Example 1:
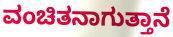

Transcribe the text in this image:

ವಂಚಿತನಾಗುತ್ತಾನೆ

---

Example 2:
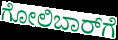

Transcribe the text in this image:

ಗೋಲಿಬಾರ್‌ಗೆ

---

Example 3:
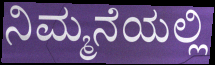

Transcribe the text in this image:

ನಿಮ್ಮನೆಯಲ್ಲಿ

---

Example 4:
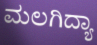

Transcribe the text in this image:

ಮಲಗಿದ್ಯಾ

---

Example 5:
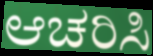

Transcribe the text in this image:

ಆಚರಿಸಿ